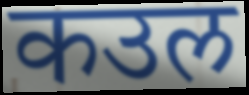
कउल